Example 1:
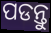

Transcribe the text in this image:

ପଡନ୍ତୁ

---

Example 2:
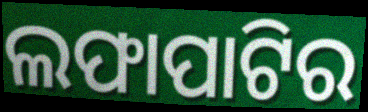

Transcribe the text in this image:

ଲଫାପାଟିର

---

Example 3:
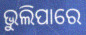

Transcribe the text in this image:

ଭୁଲିପାରେ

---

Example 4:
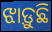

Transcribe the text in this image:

ଝାଡ଼ୁଛି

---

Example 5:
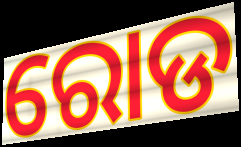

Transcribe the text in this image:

ରୋଡ